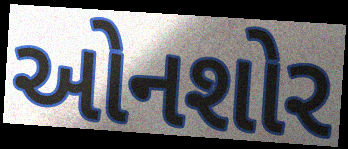
ઓનશોર